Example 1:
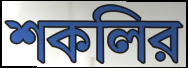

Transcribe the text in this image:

শকলির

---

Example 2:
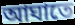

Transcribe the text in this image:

আঘাতে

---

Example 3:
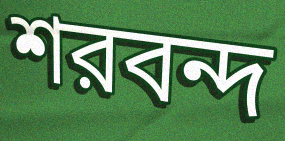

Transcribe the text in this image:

শরবন্দ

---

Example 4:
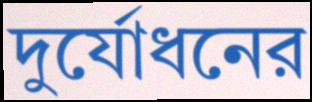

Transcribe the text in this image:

দুর্যোধনের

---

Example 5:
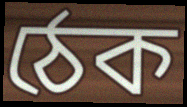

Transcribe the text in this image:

ঠেক